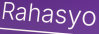
Rahasyo